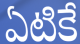
ఏటికే